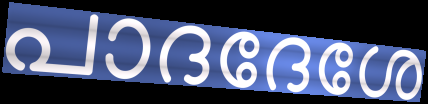
പാദദേശേ